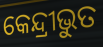
କେନ୍ଦ୍ରୀଭୁତ